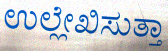
ಉಲ್ಲೇಖಿಸುತ್ತಾ